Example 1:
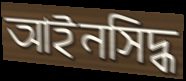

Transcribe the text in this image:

আইনসিদ্ধ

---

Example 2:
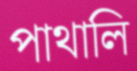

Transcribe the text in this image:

পাথালি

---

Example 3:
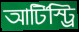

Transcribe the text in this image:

আর্টিস্ট্রি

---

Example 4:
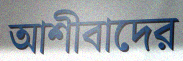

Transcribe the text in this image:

আশীবাদের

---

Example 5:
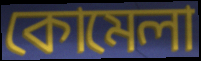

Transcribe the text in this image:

কোমেলা